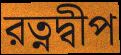
রত্নদ্বীপ